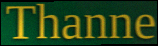
Thanne